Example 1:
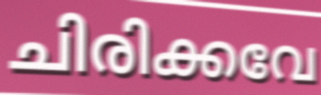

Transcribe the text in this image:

ചിരിക്കവേ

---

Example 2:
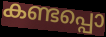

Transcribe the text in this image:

കണ്ടപ്പൊ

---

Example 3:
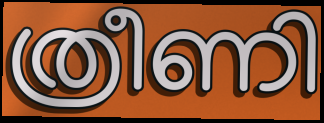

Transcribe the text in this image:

ത്രീണി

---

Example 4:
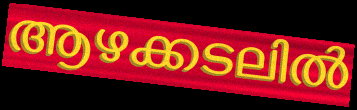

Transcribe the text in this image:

ആഴക്കടലിൽ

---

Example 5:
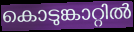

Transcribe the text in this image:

കൊടുങ്കാറ്റിൽ